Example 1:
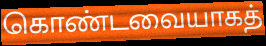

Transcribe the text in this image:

கொண்டவையாகத்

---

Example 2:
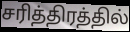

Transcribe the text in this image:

சரித்திரத்தில்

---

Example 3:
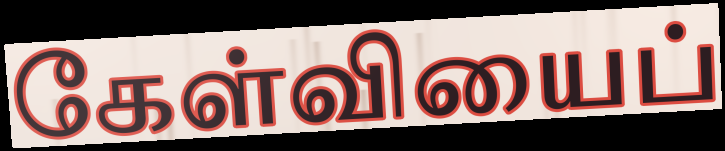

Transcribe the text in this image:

கேள்வியைப்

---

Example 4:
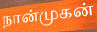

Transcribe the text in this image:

நான்முகன்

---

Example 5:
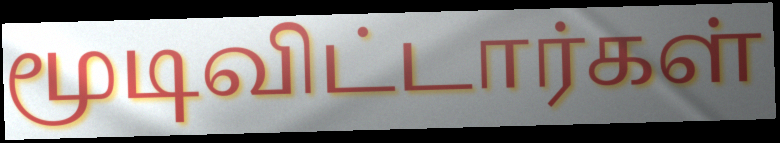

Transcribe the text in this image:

மூடிவிட்டார்கள்